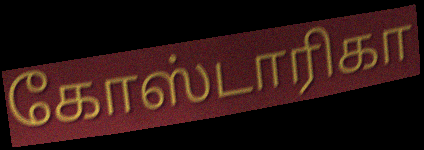
கோஸ்டாரிகா